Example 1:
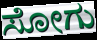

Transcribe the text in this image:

ಸೋಗು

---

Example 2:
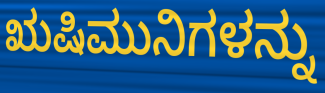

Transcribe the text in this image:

ಋಷಿಮುನಿಗಳನ್ನು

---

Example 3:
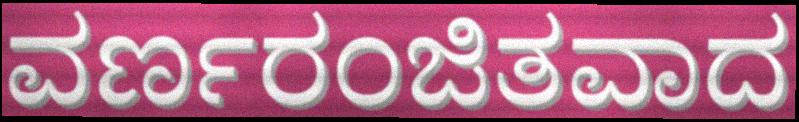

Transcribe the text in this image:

ವರ್ಣರಂಜಿತವಾದ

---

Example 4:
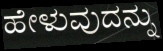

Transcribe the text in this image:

ಹೇಳುವುದನ್ನು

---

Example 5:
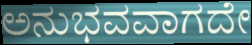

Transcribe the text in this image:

ಅನುಭವವಾಗದೇ